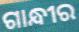
ଗାନ୍ଧୀର